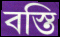
বস্তি